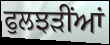
ਫੁਲਝੜੀਂਆਂ